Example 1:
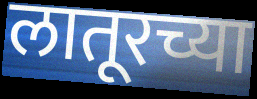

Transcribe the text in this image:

लातूरच्या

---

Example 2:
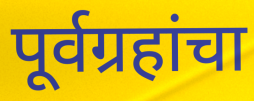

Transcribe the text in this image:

पूर्वग्रहांचा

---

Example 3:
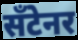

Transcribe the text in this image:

सँटेनर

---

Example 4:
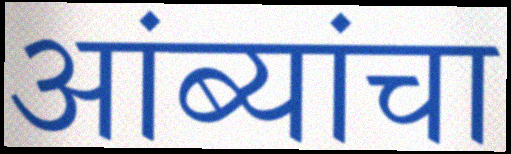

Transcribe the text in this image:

आंब्यांचा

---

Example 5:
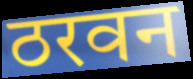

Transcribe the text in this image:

ठरवन